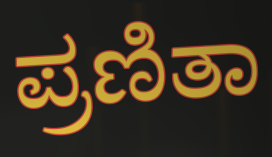
ಪ್ರಣಿತಾ